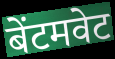
बेंटमवेट